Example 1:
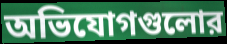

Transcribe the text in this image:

অভিযোগগুলোর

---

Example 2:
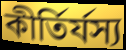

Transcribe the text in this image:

কীর্তির্যস্য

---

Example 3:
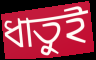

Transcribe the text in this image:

ধাতুই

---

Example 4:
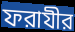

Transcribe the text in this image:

ফরাযীর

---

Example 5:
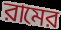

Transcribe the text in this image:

রামের